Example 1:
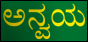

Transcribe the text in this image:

ಅನ್ವಯ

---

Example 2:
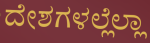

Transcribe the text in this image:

ದೇಶಗಳಲ್ಲೆಲ್ಲಾ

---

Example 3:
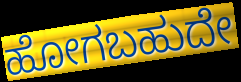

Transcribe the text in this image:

ಹೋಗಬಹುದೇ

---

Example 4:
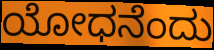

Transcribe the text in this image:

ಯೋಧನೆಂದು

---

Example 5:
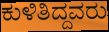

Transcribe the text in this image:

ಕುಳಿತಿದ್ದವರು